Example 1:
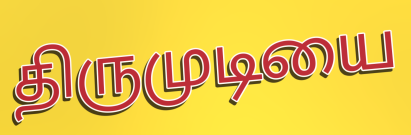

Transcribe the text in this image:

திருமுடியை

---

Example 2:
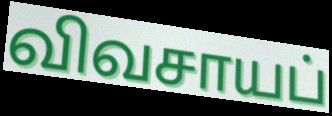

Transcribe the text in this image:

விவசாயப்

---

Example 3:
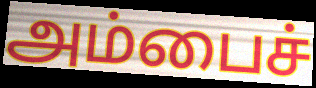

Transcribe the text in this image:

அம்பைச்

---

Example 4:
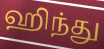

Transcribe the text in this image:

ஹிந்து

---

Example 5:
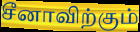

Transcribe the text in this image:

சீனாவிற்கும்